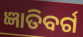
ଜ୍ଞାତିବର୍ଗ